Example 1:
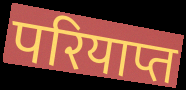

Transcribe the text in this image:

परियाप्त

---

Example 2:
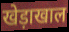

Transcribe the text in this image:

खेड़ाखाल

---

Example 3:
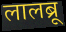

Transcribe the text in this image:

लालब्रू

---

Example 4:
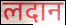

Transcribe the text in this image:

लदान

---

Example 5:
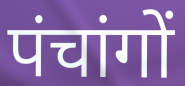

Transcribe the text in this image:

पंचांगों